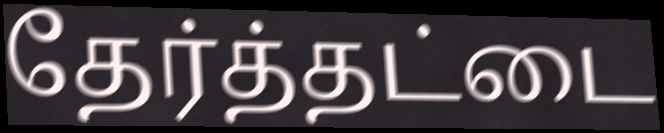
தேர்த்தட்டை